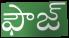
ఫౌజ్